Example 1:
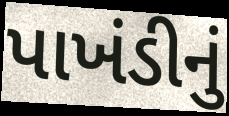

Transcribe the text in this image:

પાખંડીનું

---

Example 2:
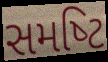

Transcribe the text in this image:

સમષ્‍ટિ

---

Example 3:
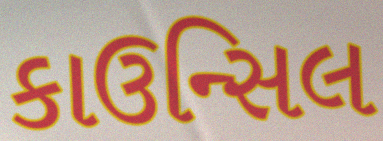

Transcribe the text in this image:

કાઉન્‍સિલ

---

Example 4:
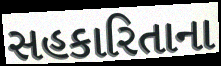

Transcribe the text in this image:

સહકારિતાના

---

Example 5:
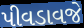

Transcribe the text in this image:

પીવડાવજે